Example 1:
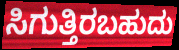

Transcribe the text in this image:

ಸಿಗುತ್ತಿರಬಹುದು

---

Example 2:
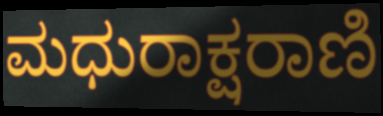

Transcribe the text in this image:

ಮಧುರಾಕ್ಷರಾಣಿ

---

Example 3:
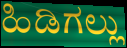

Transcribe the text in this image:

ಹಿಡಿಗಲ್ಲು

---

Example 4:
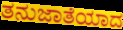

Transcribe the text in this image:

ತನುಜಾತೆಯಾದ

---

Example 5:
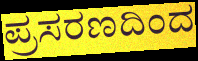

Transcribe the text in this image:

ಪ್ರಸರಣದಿಂದ